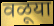
वळूया